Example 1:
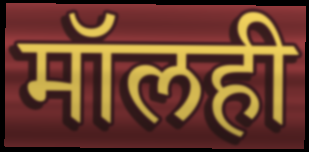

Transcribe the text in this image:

मॉलही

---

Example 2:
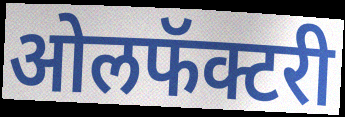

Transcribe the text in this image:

ओलफॅक्टरी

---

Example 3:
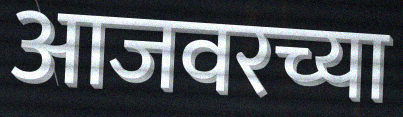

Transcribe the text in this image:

आजवरच्या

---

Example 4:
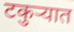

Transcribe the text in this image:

टकुऱ्यात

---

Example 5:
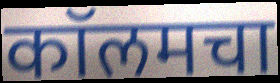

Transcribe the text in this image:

कॉलमचा